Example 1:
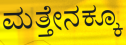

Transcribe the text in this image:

ಮತ್ತೇನಕ್ಕೂ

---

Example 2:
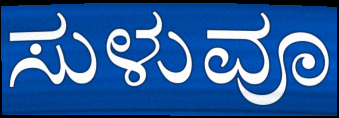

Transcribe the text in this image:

ಸುಳುವೂ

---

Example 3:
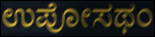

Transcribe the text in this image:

ಉಪೋಸಥಂ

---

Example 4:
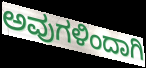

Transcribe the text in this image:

ಅವುಗಳಿಂದಾಗಿ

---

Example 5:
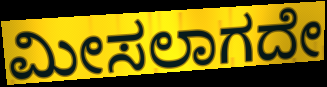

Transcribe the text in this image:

ಮೀಸಲಾಗದೇ